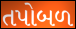
તપોબળ